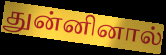
துன்னினால்